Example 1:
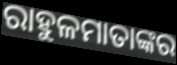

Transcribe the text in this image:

ରାହୁଳମାତାଙ୍କର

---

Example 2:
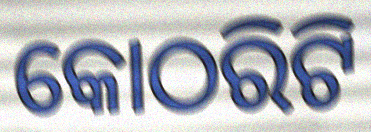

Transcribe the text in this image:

କୋଠରିଟି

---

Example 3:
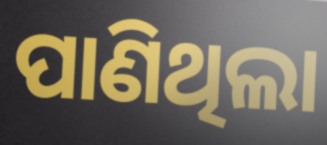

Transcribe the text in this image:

ପାଣିଥିଲା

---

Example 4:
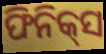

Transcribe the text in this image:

ଫିନିକ୍‍ସ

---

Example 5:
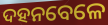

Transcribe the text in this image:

ଦହନବେଳେ